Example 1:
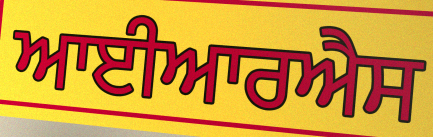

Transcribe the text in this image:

ਆਈਆਰਐਸ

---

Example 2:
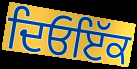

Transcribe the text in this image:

ਦਿਓਇੱਕ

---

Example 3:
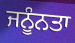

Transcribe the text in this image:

ਜਨੂੰਨਤਾ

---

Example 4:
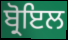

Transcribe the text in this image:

ਬ੍ਰੋਇਲ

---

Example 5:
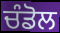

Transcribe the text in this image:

ਚੰਡੋਲ